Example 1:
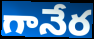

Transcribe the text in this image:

గానేర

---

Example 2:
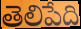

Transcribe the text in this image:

తెలిపేది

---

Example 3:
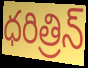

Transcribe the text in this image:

ధరిత్రిన్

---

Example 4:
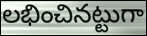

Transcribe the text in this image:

లభించినట్టుగా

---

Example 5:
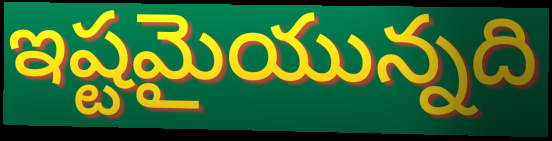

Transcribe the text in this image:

ఇష్టమైయున్నది